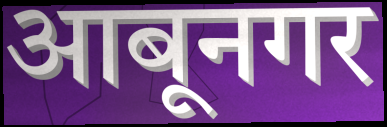
आबूनगर